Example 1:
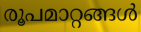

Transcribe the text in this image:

രൂപമാറ്റങ്ങൾ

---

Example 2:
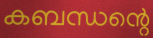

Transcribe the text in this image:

കബന്ധന്റെ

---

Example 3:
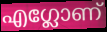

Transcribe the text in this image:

എഗ്ലോണ്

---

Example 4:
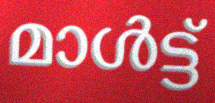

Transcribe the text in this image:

മാൾട്ട്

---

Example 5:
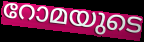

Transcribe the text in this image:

റോമയുടെ